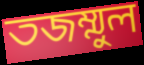
তজম্মুল